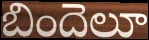
బిందెలూ